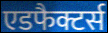
एडफैक्टर्स